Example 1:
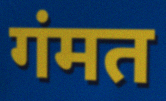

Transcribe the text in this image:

गंमत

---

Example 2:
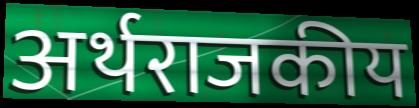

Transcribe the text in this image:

अर्थराजकीय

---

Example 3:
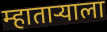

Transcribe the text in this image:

म्हाताऱ्याला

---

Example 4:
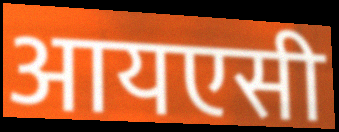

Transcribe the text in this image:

आयएसी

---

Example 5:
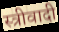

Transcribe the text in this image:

स्त्रीवादी